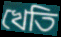
খেতি